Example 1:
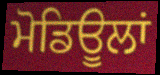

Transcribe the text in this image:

ਮੋਡਿਊਲਾਂ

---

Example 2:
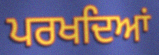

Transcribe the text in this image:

ਪਰਖਦਿਆਂ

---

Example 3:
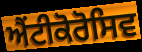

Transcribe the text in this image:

ਐਂਟੀਕੋਰੋਸਿਵ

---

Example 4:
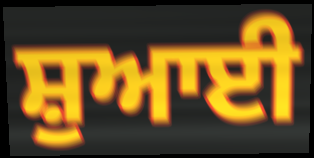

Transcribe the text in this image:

ਸ਼ੁਆਈ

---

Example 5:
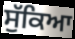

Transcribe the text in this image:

ਸੁੱਕਿਆ